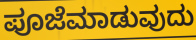
ಪೂಜೆಮಾಡುವುದು